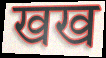
खख